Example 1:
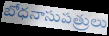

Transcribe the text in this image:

బోధనాసుపత్రులు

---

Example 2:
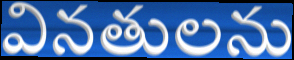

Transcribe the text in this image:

వినతులను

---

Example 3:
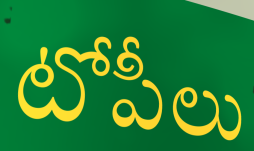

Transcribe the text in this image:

టోపీలు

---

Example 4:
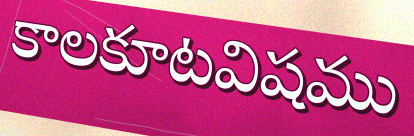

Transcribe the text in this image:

కాలకూటవిషము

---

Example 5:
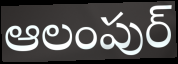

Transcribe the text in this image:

ఆలంపుర్